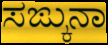
ಸಙ್ಕುನಾ